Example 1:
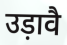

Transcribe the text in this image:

उड़ावै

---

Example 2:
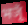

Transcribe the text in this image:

भजूँ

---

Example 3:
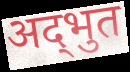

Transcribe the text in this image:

अद्‌भुत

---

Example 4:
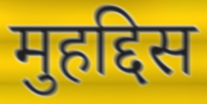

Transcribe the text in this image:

मुहद्दिस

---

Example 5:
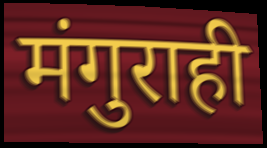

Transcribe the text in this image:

मंगुराही